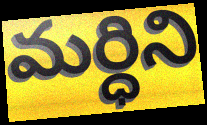
మర్ధిని